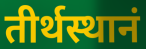
तीर्थस्थानं